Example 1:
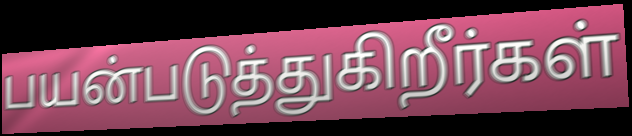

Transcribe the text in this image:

பயன்படுத்துகிறீர்கள்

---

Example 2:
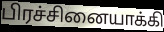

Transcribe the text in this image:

பிரச்சினையாக்கி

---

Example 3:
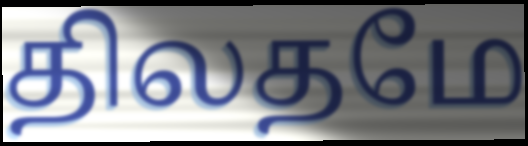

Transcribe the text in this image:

திலதமே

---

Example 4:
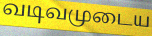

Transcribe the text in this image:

வடிவமுடைய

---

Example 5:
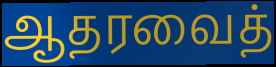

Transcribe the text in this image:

ஆதரவைத்